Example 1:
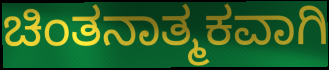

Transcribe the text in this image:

ಚಿಂತನಾತ್ಮಕವಾಗಿ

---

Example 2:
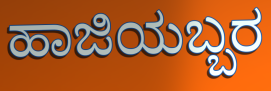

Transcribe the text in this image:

ಹಾಜಿಯಬ್ಬರ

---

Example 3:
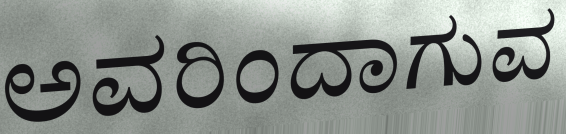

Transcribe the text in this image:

ಅವರಿಂದಾಗುವ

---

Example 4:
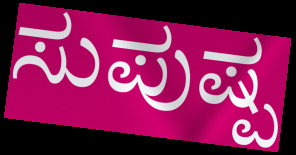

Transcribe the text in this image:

ಸುಪುಷ್ಪ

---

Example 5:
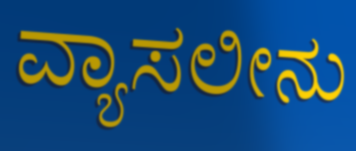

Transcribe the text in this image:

ವ್ಯಾಸಲೀನು